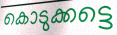
കൊടുക്കട്ടെ